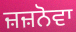
ਜ਼ਜ਼ਨੋਵਾ